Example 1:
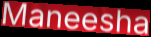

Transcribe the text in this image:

Maneesha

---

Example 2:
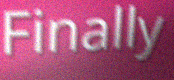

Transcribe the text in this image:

Finally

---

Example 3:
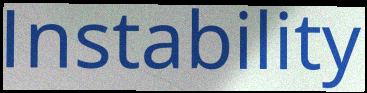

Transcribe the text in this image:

Instability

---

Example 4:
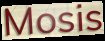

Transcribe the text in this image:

Mosis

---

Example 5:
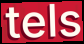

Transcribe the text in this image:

tels